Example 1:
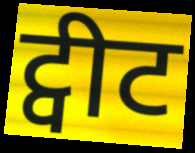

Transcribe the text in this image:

ट्वीट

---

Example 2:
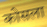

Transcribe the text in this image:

कोसला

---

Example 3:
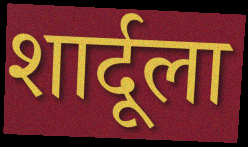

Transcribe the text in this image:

शार्दूला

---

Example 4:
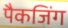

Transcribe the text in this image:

पैकजिंग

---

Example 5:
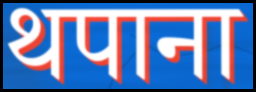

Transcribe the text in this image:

थपाना